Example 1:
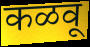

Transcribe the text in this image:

कळवू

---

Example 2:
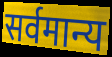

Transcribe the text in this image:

सर्वमान्य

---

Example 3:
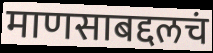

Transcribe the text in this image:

माणसाबद्दलचं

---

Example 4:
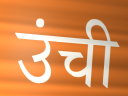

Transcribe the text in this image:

उंची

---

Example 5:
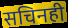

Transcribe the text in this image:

सचिनही